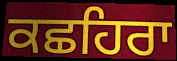
ਕਛਹਿਰਾ